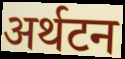
अर्थटन